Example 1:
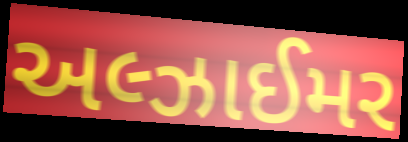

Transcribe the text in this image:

અલ્ઝાઈમર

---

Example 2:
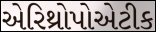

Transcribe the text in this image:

એરિથ્રોપોએટીક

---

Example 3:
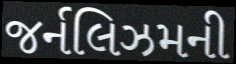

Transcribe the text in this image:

જર્નલિઝમની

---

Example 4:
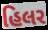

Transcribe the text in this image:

હિલર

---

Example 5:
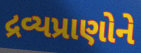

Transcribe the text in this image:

દ્રવ્યપ્રાણોને